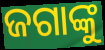
ଜଗାଙ୍କୁ